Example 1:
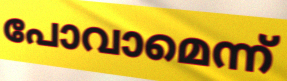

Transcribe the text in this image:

പോവാമെന്ന്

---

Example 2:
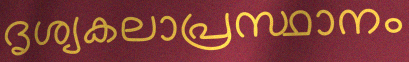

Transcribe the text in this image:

ദൃശ്യകലാപ്രസ്ഥാനം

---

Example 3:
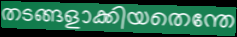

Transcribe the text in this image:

തടങ്ങളാക്കിയതെന്തേ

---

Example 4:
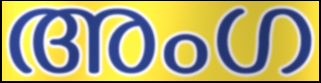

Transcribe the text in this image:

അംഗ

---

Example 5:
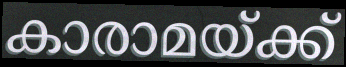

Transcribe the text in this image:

കാരാമയ്ക്ക്